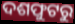
ଦଶଫୁଟରୁ